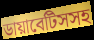
ডায়াবেটিসসহ